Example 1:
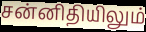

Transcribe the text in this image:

சன்னிதியிலும்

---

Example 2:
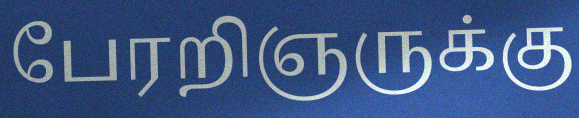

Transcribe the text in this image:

பேரறிஞருக்கு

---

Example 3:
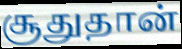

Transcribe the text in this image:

சூதுதான்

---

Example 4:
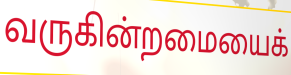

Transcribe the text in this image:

வருகின்றமையைக்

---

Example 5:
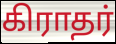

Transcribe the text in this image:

கிராதர்